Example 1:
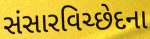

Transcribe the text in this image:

સંસારવિચ્છેદના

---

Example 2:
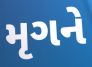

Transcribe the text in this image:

મૃગને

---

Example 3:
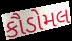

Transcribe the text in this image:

કૌડોમલ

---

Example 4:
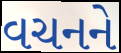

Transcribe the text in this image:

વચનને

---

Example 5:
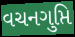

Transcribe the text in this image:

વચનગુપ્તિ